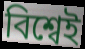
বিশ্বেই